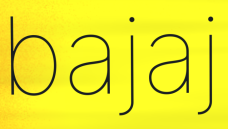
bajaj